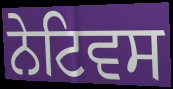
ਨੇਟਿਵਸ